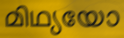
മിഥ്യയോ